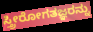
ಸ್ತ್ರೀರೋಗತಜ್ಞರನ್ನು